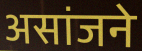
असांजने